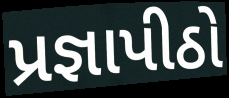
પ્રજ્ઞાપીઠો